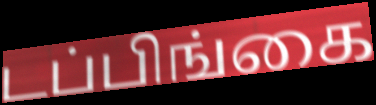
டப்பிங்கை